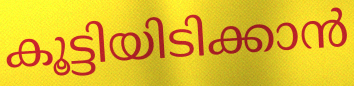
കൂട്ടിയിടിക്കാൻ